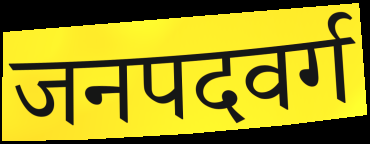
जनपदवर्ग